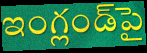
ఇంగ్లండ్‌పై